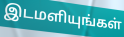
இடமளியுங்கள்